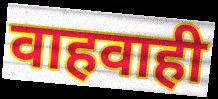
वाहवाही